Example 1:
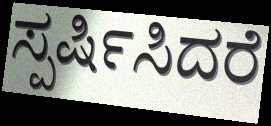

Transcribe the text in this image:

ಸ್ಪರ್ಷಿಸಿದರೆ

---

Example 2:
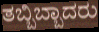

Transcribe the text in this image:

ತಬ್ಬಿಬ್ಬಾದರು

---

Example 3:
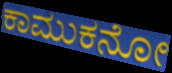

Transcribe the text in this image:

ಕಾಮುಕನೋ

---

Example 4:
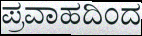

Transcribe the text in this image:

ಪ್ರವಾಹದಿಂದ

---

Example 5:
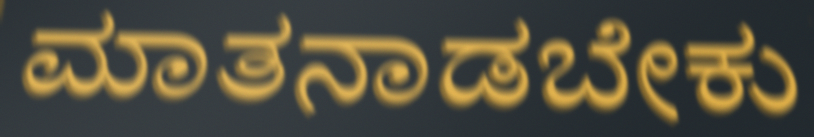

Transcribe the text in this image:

ಮಾತನಾಡಬೇಕು